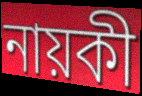
নায়কী